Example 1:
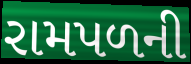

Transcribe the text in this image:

રામપળની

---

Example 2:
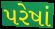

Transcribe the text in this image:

પરેષાં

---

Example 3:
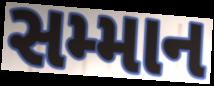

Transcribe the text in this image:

સમ્માન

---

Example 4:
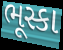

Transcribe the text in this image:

ભૂસ્કા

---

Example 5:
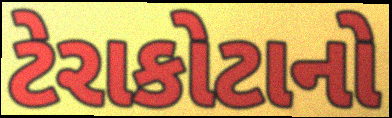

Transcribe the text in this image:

ટેરાકોટાનો